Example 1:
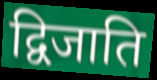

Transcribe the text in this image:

द्विजाति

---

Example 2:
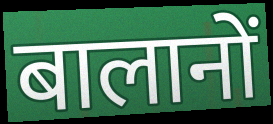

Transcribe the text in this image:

बालानों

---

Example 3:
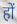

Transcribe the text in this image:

हों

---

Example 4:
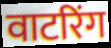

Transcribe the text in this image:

वाटरिंग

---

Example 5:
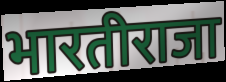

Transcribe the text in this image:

भारतीराजा